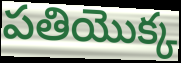
పతియొక్క